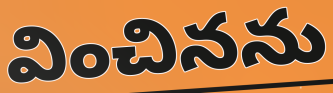
వించినను